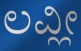
ಲವ್ಲೀ